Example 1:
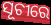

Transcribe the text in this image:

ସୂଚୀରେ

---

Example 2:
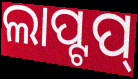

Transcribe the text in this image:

ଲାପ୍ଟପ୍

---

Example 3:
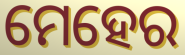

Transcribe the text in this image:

ମେହେର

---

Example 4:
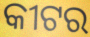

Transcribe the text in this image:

କୀଟର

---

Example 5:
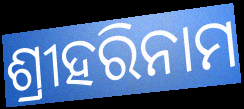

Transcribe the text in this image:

ଶ୍ରୀହରିନାମ